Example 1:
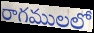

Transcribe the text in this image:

రాగములలో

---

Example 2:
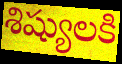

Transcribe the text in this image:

శిష్యులకి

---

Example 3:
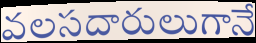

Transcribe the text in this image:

వలసదారులుగానే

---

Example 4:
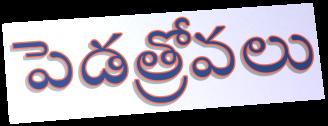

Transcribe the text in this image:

పెడత్రోవలు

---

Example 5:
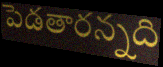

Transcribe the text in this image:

పెడతారన్నది